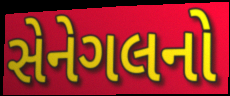
સેનેગલનો